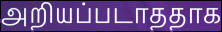
அறியப்படாததாக